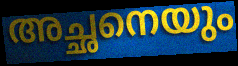
അച്ഛനെയും